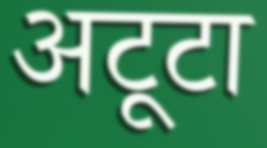
अटूटा